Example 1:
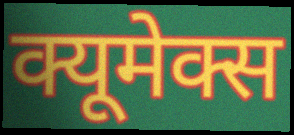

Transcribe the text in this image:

क्यूमेक्स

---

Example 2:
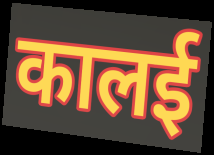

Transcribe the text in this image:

कालई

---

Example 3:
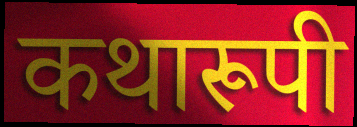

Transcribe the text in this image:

कथारूपी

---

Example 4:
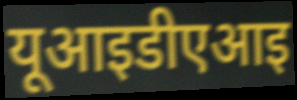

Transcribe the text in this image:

यूआइडीएआइ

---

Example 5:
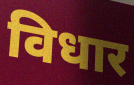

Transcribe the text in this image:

विधार